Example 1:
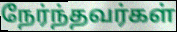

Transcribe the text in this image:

நேர்ந்தவர்கள்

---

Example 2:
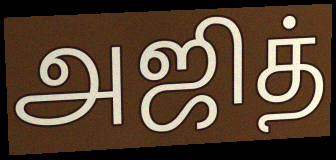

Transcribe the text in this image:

அஜித்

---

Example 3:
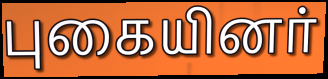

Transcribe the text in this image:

புகையினர்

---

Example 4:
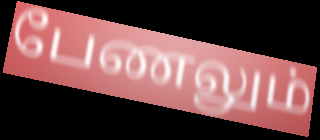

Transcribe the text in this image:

பேணலும்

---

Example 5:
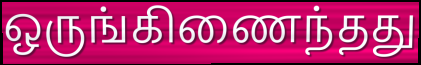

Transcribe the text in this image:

ஒருங்கிணைந்தது